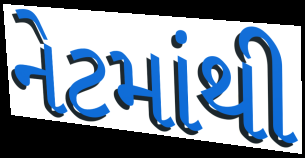
નેટમાંથી